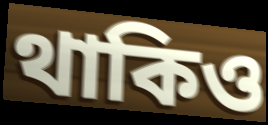
থাকিও